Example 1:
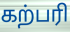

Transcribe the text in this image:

கற்பரி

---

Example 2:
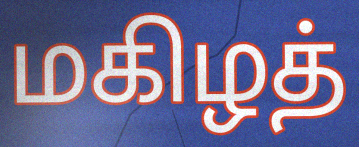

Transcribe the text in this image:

மகிழத்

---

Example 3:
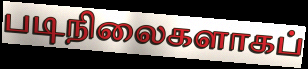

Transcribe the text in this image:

படிநிலைகளாகப்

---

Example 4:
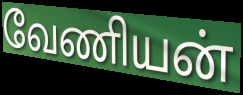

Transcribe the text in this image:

வேணியன்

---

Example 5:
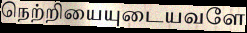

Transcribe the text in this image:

நெற்றியையுடையவளே